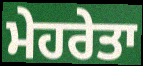
ਮੇਹਰੇਤਾ